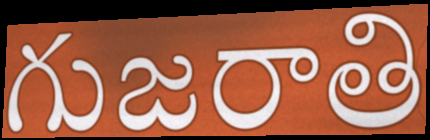
గుజరాతి